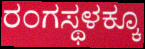
ರಂಗಸ್ಥಳಕ್ಕೂ